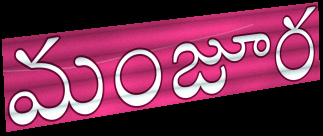
మంజూర